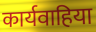
कार्यवाहिया